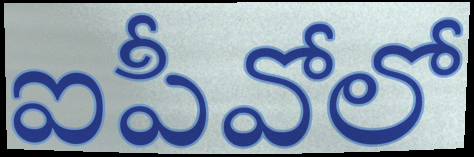
ఐపీవోలో